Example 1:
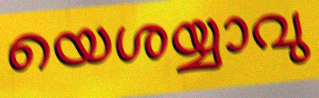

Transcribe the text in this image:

യെശയ്യാവു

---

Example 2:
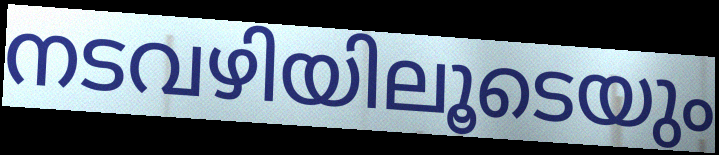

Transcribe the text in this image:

നടവഴിയിലൂടെയും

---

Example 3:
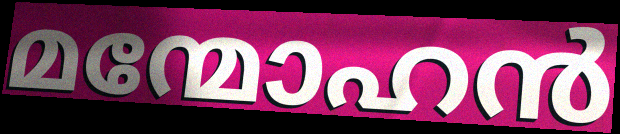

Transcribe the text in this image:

മന്മോഹൻ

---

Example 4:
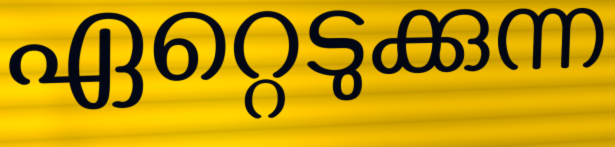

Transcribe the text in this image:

ഏറ്റെടുക്കുന്ന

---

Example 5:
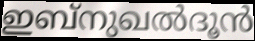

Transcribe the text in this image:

ഇബ്നുഖൽദൂൻ